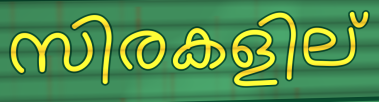
സിരകളില്